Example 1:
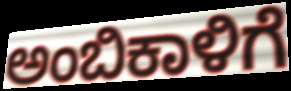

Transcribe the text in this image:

ಅಂಬಿಕಾಳಿಗೆ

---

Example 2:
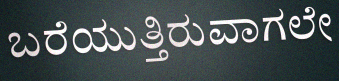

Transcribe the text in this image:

ಬರೆಯುತ್ತಿರುವಾಗಲೇ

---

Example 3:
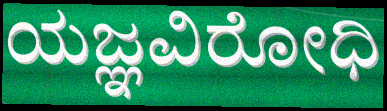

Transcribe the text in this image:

ಯಜ್ಞವಿರೋಧಿ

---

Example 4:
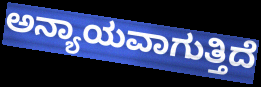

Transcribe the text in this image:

ಅನ್ಯಾಯವಾಗುತ್ತಿದೆ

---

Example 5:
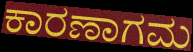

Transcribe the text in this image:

ಕಾರಣಾಗಮ